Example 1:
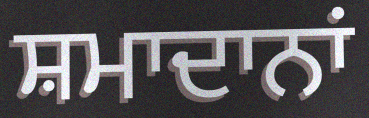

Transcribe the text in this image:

ਸ਼ਮਾਦਾਨਾਂ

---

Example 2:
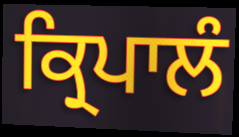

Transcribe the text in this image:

ਕ੍ਰਿਪਾਲੰ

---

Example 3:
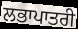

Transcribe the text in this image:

ਲਭਾਪਾਤਰੀ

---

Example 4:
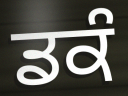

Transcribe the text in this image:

ਡਕੰ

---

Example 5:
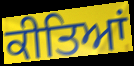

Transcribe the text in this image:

ਕੀਤਿਆਂ